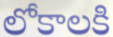
లోకాలకి